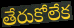
తేరుకోలేక